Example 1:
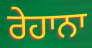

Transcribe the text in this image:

ਰੇਹਾਨਾ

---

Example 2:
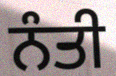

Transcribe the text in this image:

ਨੰਤੀ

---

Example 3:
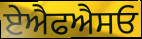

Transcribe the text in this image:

ਏਐਫਐਸਓ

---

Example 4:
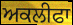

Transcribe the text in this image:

ਅਕਲੀਫਾ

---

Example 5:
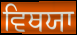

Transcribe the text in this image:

ਵਿਥਯਾ